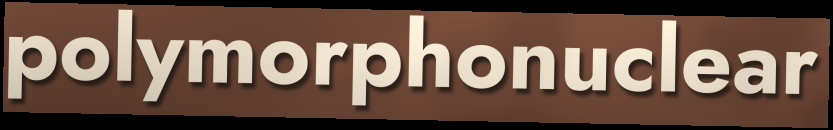
polymorphonuclear